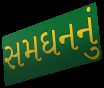
સમઘનનું